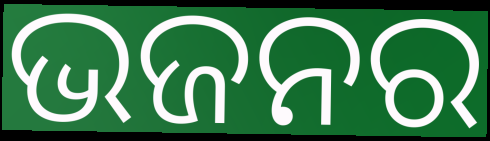
ଭଜନର